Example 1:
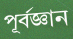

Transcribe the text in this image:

পূর্বজ্ঞান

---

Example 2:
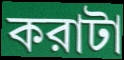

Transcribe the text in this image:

করাটা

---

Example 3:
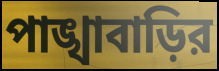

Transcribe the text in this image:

পাঙ্খাবাড়ির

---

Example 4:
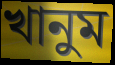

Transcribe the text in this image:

খানুম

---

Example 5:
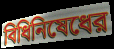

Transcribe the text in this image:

বিধিনিষেধের